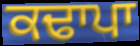
ਕਢਾਪਾ